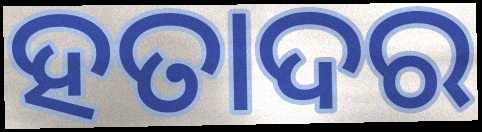
ହତାଦର